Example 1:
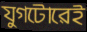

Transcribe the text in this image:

যুগটোৱেই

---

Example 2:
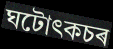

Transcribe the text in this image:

ঘটোৎকচৰ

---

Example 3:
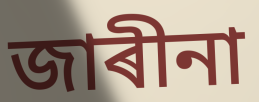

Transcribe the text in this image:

জাৰীনা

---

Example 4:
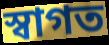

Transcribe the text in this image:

স্বাগত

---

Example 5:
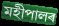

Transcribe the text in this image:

মহীপালৰ